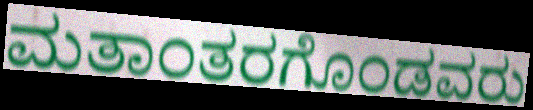
ಮತಾಂತರಗೊಂಡವರು